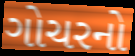
ગોચરનો